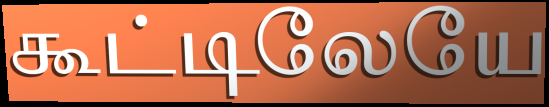
கூட்டிலேயே